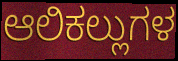
ಆಲಿಕಲ್ಲುಗಳ